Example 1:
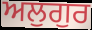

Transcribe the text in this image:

ਅਲੁਗੁਰ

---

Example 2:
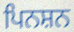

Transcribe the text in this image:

ਪਿਨਸ਼ਨ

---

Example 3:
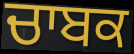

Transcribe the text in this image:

ਚਾਬਕ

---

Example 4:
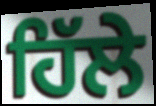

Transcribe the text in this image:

ਹਿੱਲੇ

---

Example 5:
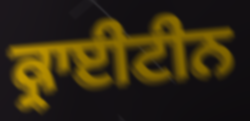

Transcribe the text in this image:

ਕ੍ਰਾਈਟੀਨ